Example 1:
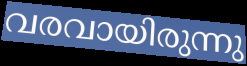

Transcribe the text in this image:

വരവായിരുന്നു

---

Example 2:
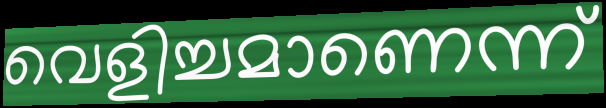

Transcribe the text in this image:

വെളിച്ചമാണെന്ന്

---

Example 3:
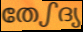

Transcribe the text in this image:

തേഽദ്യ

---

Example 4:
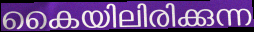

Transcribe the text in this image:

കൈയിലിരിക്കുന്ന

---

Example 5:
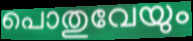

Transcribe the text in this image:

പൊതുവേയും